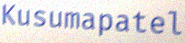
Kusumapatel